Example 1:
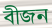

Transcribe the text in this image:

বীজন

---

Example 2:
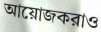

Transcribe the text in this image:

আয়োজকরাও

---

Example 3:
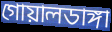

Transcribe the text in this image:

গোয়ালডাঙ্গা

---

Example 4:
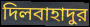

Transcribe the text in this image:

দিলবাহাদুর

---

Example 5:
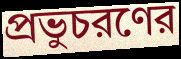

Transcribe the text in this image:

প্রভুচরণের